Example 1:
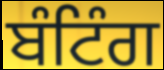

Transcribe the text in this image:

ਬੰਟਿੰਗ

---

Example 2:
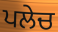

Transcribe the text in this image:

ਪਲੇਚ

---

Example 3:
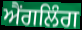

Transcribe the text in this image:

ਐਂਗਲਿੰਗ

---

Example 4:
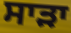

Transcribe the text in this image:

ਸਾੜਾ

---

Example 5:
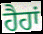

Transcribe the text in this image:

ਹੈਹਾਂ